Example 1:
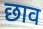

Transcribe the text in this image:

छाव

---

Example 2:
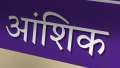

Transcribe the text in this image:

आंशिक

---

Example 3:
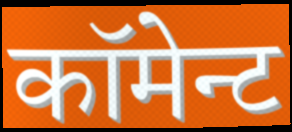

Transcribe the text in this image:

कॉमेन्ट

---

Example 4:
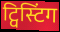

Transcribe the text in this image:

ट्विस्टिंग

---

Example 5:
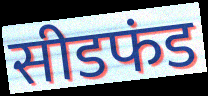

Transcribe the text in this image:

सीडफंड